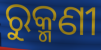
ରୁକ୍ମଣୀ